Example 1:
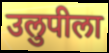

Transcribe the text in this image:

उलुपीला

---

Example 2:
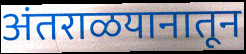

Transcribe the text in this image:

अंतराळयानातून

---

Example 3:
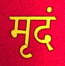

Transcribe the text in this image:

मृदं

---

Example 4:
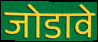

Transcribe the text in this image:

जोडावे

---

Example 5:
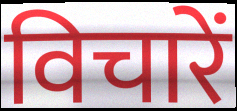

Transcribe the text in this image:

विचारें